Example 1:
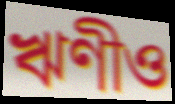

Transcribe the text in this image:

ঋণীও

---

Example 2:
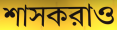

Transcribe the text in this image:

শাসকরাও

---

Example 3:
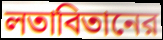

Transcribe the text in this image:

লতাবিতানের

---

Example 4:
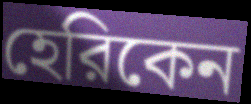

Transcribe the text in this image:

হেরিকেন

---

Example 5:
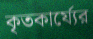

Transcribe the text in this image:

কৃতকার্য্যের